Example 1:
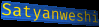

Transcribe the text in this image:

Satyanweshi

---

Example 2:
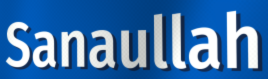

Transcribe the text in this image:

Sanaullah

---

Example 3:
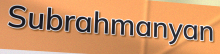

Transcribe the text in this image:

Subrahmanyan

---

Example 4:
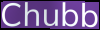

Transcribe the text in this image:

Chubb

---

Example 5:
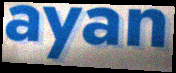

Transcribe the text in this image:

ayan